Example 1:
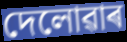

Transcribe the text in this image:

দেলোৱাৰ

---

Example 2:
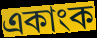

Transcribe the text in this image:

একাংক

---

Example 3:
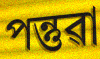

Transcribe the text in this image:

পন্তুৱা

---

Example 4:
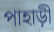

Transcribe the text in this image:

পাহাড়ী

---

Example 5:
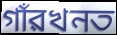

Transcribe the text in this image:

গাঁৱখনত